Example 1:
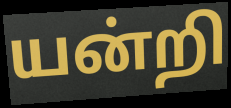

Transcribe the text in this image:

யன்றி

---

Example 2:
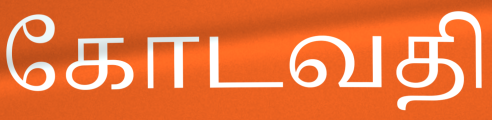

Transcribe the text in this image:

கோடவதி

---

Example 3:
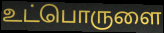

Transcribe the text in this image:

உட்பொருளை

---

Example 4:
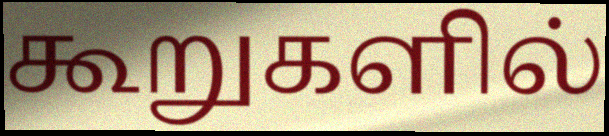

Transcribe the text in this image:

கூறுகளில்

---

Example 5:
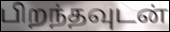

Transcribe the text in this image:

பிறந்தவுடன்